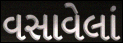
વસાવેલાં